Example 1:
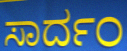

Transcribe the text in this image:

ಸಾರ್ದಂ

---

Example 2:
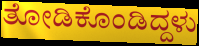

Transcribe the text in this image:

ತೋಡಿಕೊಂಡಿದ್ದಳು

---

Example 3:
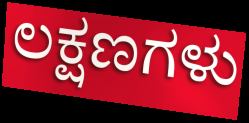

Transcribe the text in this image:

ಲಕ್ಷಣಗಳು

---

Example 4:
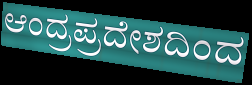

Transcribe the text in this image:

ಆಂದ್ರಪ್ರದೇಶದಿಂದ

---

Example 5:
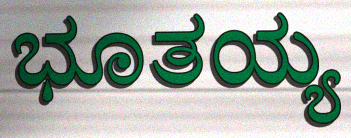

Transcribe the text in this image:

ಭೂತಯ್ಯ